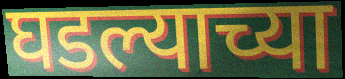
घडल्याच्या